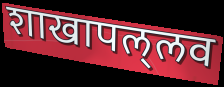
शाखापल्लव